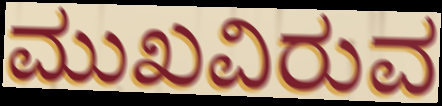
ಮುಖವಿರುವ